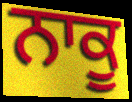
ਨਾਕੂ